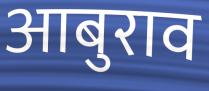
आबुराव